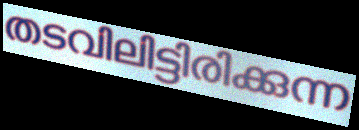
തടവിലിട്ടിരിക്കുന്ന